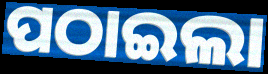
ପଠାଇଲା